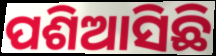
ପଶିଆସିଛି